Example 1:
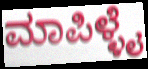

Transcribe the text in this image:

ಮಾಪಿಳ್ಳೈ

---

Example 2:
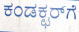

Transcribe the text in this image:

ಕಂಡಕ್ಟರ್‌ಗೆ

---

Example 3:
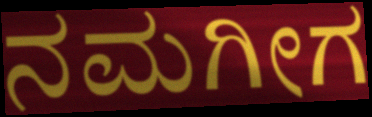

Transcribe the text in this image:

ನಮಗೀಗ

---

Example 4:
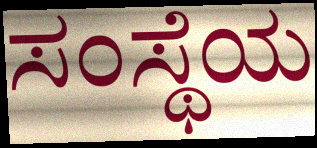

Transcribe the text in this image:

ಸಂಸ್ಥೆಯ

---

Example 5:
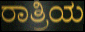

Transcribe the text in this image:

ರಾತ್ರಿಯ